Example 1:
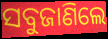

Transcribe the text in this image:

ସବୁଜାଣିଲେ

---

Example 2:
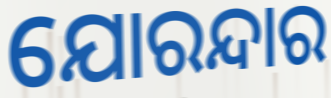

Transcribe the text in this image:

ଯୋରନ୍ଦାର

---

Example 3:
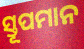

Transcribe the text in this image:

ସ୍ତୂପମାନ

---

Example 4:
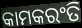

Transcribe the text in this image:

କାମକରଂତି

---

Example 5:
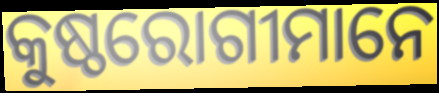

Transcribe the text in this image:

କୁଷ୍ଠରୋଗୀମାନେ